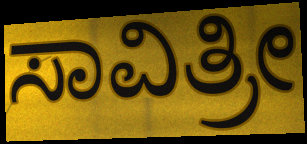
ಸಾವಿತ್ರೀ